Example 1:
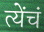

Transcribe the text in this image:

त्येंचं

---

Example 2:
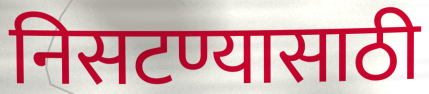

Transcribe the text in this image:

निसटण्यासाठी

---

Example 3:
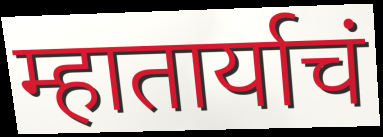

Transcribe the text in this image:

म्हातार्याचं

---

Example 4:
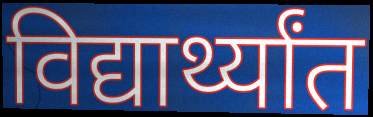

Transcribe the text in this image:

विद्यार्थ्यांत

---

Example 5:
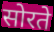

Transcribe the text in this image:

सोरते